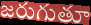
జరుగుతూ